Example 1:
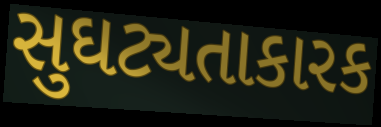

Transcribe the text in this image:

સુઘટ્યતાકારક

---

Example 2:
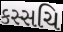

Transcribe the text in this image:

કસ્સચિ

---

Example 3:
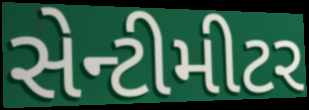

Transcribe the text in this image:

સેન્ટીમીટર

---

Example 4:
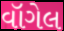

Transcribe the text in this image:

વૉગેલ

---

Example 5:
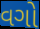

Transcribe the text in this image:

વગો